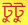
টুটু